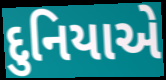
દુનિયાએ